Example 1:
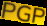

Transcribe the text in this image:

PGP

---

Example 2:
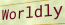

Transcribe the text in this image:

Worldly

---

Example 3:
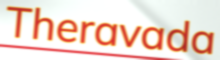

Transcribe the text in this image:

Theravada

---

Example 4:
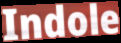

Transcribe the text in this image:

Indole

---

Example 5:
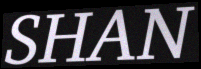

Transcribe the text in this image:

SHAN